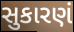
સુકારણં